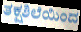
ತಕ್ಷಶಿಲೆಯಿಂದ